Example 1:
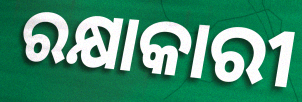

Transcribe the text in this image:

ରକ୍ଷାକାରୀ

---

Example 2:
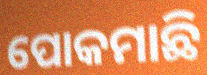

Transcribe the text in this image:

ପୋକମାଛି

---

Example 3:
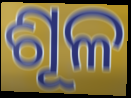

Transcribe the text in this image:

ଶୂଳ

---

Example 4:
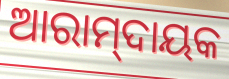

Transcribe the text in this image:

ଆରାମ୍‌ଦାୟକ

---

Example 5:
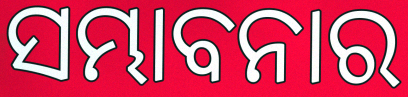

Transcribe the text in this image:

ସମ୍ଭାବନାର